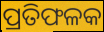
ପ୍ରତିଫଳକ